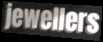
jewellers